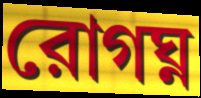
রোগঘ্ন